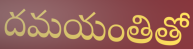
దమయంతితో